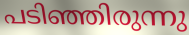
പടിഞ്ഞിരുന്നു